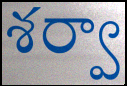
శర్వా